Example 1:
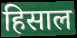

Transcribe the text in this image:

हिसाल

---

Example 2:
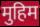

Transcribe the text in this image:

मुहिम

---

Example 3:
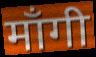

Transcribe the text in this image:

माँगी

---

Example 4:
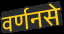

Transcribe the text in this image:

वर्णनसे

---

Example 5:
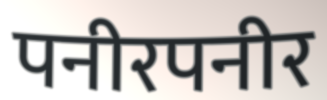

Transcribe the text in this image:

पनीरपनीर